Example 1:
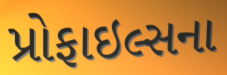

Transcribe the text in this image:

પ્રોફાઇલ્સના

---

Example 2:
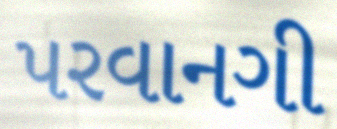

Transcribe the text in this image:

પરવાનગી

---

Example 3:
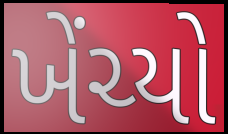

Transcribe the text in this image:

ખેંચ્યો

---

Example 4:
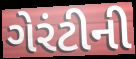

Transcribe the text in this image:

ગેરંટીની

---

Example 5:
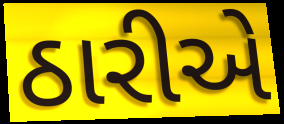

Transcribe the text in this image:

ઠારીએ